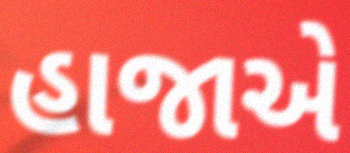
હાજાએ